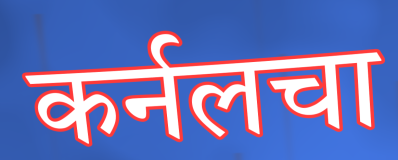
कर्नलचा